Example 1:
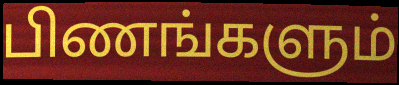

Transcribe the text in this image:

பிணங்களும்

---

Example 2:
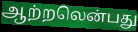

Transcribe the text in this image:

ஆற்றலென்பது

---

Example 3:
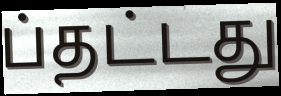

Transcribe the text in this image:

ப்தட்டது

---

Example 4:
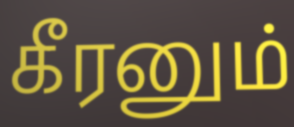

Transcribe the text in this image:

கீரனும்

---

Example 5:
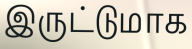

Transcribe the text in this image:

இருட்டுமாக